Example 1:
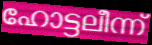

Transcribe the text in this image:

ഹോട്ടലീന്ന്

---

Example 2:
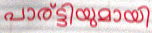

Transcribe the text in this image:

പാര്ട്ടിയുമായി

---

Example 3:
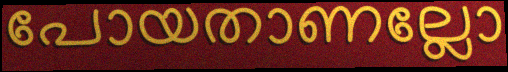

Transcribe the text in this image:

പോയതാണല്ലോ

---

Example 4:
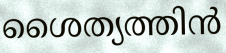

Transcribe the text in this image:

ശൈത്യത്തിൻ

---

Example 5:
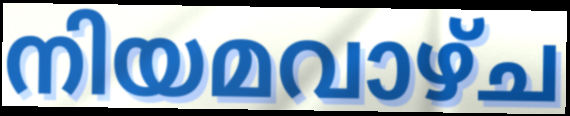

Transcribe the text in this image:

നിയമവാഴ്ച